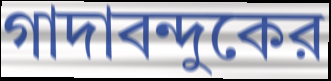
গাদাবন্দুকের